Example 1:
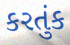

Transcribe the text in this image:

કરતુંક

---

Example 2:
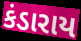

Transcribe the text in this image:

કંડારાય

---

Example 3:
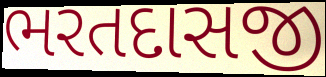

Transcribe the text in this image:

ભરતદાસજી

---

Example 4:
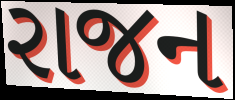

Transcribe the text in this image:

રાજન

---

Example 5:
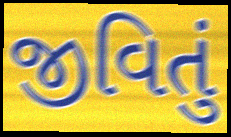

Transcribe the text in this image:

જીવિતું